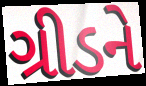
ગ્રીડને